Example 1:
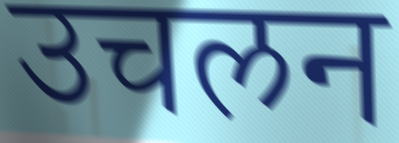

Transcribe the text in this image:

उचलन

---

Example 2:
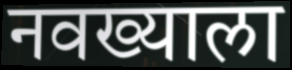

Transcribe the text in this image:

नवख्याला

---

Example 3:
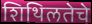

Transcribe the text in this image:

शिथिलतेचे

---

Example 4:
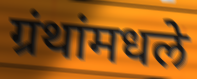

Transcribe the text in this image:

ग्रंथांमधले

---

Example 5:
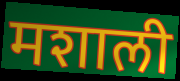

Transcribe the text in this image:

मशाली